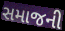
સમાજની